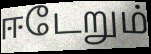
ஈடேறும்